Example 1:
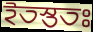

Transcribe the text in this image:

ইতস্ততঃ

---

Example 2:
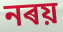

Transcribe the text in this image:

নৰয়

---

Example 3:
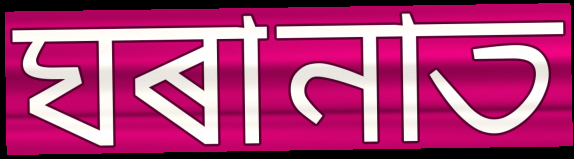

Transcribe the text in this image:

ঘৰানাত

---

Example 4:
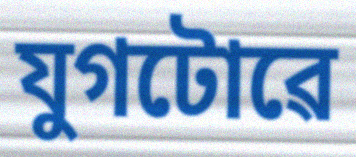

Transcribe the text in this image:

যুগটোৱে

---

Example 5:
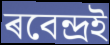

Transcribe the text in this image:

ৰবেন্দ্ৰই